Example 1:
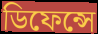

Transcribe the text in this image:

ডিফেন্সে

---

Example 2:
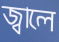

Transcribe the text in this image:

জ্বালে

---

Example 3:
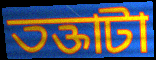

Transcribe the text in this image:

তক্তাটা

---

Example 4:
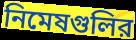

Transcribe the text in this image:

নিমেষগুলির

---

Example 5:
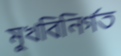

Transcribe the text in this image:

মুখবিনির্গত